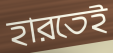
হারতেই